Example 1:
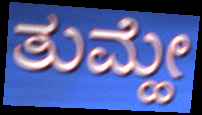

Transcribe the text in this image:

ತುಮ್ಹೇ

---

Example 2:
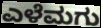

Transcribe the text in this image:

ಎಳೆಮಗು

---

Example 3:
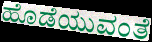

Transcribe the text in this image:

ಹೊಡೆಯುವಂತೆ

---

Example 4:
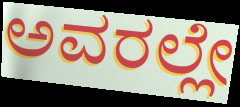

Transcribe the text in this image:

ಅವರಲ್ಲೇ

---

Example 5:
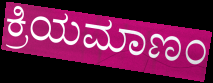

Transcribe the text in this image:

ಕ್ರಿಯಮಾಣಂ